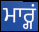
ਮਾਰ੍ਗਂ